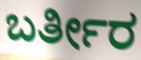
ಬರ್ತೀರ